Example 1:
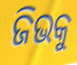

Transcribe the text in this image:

ଜିଭକୁ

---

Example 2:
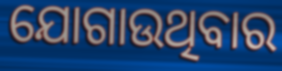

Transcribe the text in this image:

ଯୋଗାଉଥିବାର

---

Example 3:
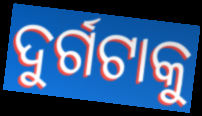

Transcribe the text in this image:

ଦୁର୍ଗଟାକୁ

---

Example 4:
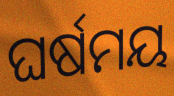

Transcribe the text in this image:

ଘର୍ଷମୟ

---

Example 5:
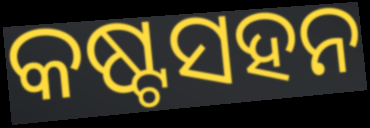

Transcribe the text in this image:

କଷ୍ଟସହନ